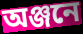
অঞ্জনে